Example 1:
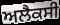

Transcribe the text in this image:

ਅਲੈਕਸੀ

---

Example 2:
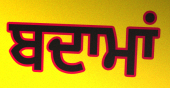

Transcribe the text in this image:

ਬਦਾਮਾਂ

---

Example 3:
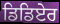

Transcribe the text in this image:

ਡਿਡਿਏਰ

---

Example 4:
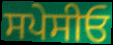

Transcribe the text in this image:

ਸਪੇਸੀਓ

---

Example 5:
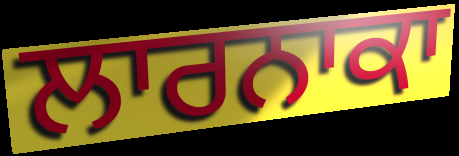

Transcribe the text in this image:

ਲਾਰਨਾਕਾ